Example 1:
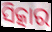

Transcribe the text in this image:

ସିତ୍କାର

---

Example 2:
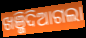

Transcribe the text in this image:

ଖଞ୍ଜିଦିଆଗଲା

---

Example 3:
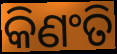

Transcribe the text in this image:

କିଣଂତି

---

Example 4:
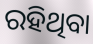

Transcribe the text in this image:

ରହିଥିବା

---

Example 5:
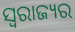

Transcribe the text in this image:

ସ୍ୱରାଜ୍ୟର